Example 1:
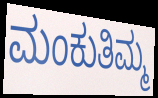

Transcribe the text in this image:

ಮಂಕುತಿಮ್ಮ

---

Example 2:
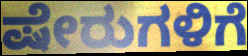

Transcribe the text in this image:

ಷೇರುಗಳಿಗೆ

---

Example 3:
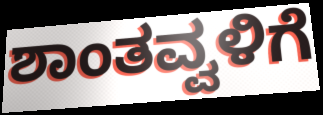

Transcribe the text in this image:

ಶಾಂತವ್ವಳಿಗೆ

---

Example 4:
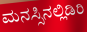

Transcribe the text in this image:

ಮನಸ್ಸಿನಲ್ಲಿಡಿರಿ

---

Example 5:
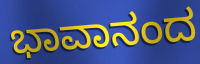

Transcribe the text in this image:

ಭಾವಾನಂದ